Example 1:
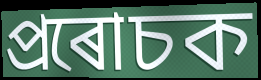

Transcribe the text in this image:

প্ৰৰোচক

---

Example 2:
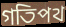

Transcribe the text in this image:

গতিপথ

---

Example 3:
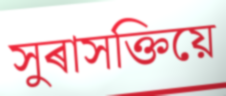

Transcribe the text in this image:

সুৰাসক্তিয়ে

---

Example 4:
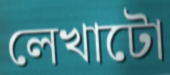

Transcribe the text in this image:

লেখাটো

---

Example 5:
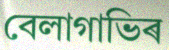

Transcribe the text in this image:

বেলাগাভিৰ